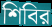
শিবির